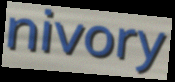
nivory